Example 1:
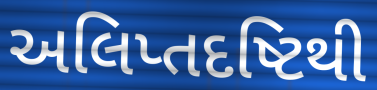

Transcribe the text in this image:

અલિપ્તદષ્ટિથી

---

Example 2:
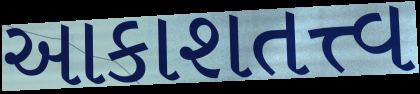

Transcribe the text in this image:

આકાશતત્ત્વ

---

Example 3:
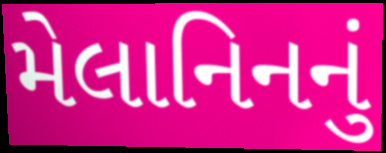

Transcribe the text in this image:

મેલાનિનનું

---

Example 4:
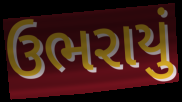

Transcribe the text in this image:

ઉભરાયું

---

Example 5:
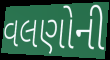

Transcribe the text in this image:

વલણોની